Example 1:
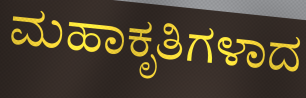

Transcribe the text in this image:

ಮಹಾಕೃತಿಗಳಾದ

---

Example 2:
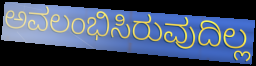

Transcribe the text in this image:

ಅವಲಂಭಿಸಿರುವುದಿಲ್ಲ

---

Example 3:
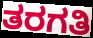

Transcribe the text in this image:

ತರಗತಿ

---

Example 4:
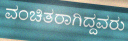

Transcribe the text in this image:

ವಂಚಿತರಾಗಿದ್ದವರು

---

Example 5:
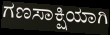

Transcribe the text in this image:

ಗಣಸಾಕ್ಷಿಯಾಗಿ